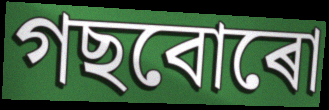
গছবোৰো